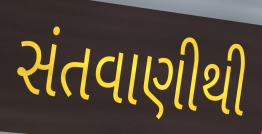
સંતવાણીથી